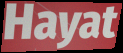
Hayat